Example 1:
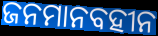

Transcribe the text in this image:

ଜନମାନବହୀନ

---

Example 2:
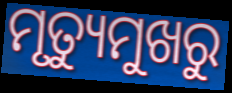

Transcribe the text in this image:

ମୃତ୍ୟୁମୁଖରୁ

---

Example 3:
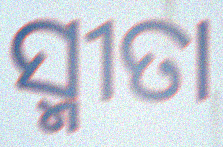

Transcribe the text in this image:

ସ୍ମୀତା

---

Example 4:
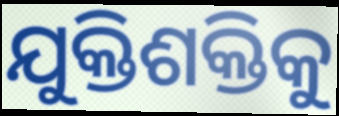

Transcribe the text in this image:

ଯୁକ୍ତିଶକ୍ତିକୁ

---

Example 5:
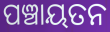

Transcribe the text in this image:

ପଞ୍ଚାୟତନ